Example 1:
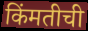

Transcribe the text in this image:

किंमतीची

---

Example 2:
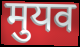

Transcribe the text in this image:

मुयव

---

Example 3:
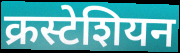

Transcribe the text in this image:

क्रस्टेशियन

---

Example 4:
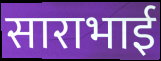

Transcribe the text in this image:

साराभाई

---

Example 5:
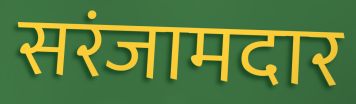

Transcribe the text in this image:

सरंजामदार